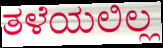
ತಳೆಯಲಿಲ್ಲ